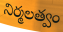
నిర్మలత్వం